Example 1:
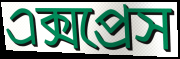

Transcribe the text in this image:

এক্সপ্রেস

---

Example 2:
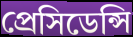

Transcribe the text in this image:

প্রেসিডেন্সি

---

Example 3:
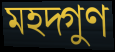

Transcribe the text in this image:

মহদ্গুণ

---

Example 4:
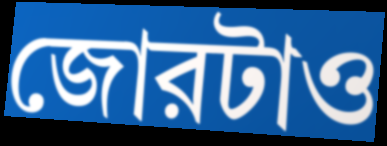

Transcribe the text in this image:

জোরটাও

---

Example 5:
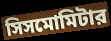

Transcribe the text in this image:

সিসমোমিটার